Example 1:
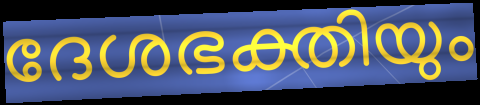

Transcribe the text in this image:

ദേശഭക്തിയും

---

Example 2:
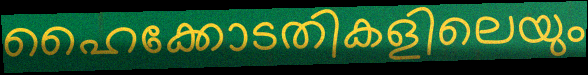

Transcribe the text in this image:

ഹൈക്കോടതികളിലെയും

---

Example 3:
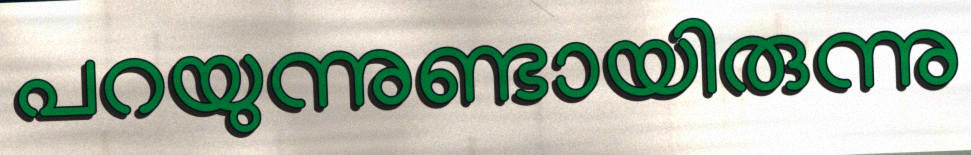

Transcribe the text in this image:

പറയുന്നുണ്ടായിരുന്നു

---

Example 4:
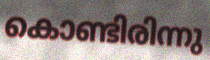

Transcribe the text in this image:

കൊണ്ടിരിന്നു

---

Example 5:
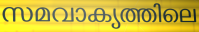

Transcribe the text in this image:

സമവാക്യത്തിലെ